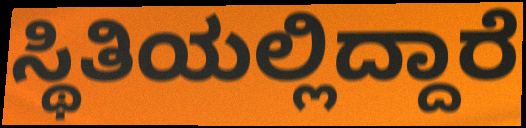
ಸ್ಥಿತಿಯಲ್ಲಿದ್ದಾರೆ